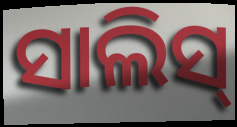
ସାଲିସ୍